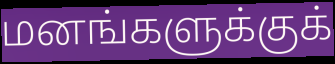
மனங்களுக்குக்